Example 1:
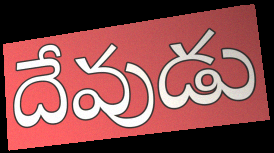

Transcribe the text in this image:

దేవుడు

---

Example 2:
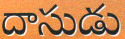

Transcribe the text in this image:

దాసుడు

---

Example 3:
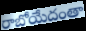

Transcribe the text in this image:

రాబోయేదంతా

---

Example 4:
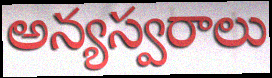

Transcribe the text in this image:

అన్యస్వరాలు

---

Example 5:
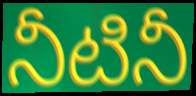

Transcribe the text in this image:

నీటినీ